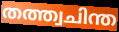
തത്ത്വചിന്ത